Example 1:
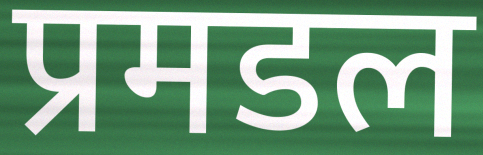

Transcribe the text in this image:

प्रमडल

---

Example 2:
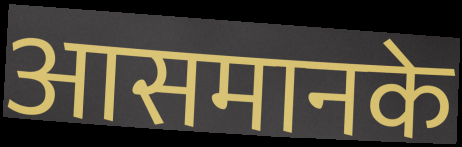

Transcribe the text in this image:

आसमानके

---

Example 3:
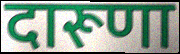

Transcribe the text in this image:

दारूणा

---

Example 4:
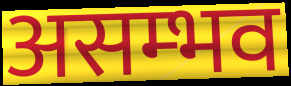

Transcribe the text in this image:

असम्‍भव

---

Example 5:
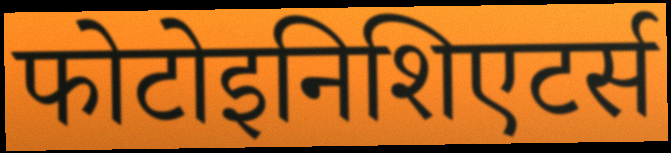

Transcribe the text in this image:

फोटोइनिशिएटर्स